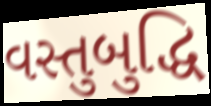
વસ્તુબુદ્ધિ